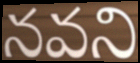
నవని